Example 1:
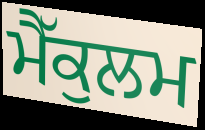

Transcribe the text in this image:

ਮੈੱਕੁਲਮ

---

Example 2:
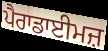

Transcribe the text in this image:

ਪੈਰਾਡਾਈਮਜ਼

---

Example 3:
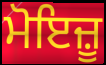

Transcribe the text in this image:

ਮੋਇਜ਼ੂ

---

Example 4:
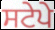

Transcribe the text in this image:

ਸਟੇਪੇ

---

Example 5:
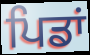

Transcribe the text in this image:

ਪਿਡਾਂ